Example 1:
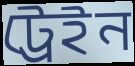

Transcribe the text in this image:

ট্ৰেইন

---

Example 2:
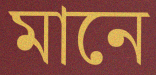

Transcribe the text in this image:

মানে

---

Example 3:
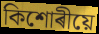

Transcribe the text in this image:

কিশোৰীয়ে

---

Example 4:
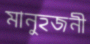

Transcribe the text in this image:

মানুহজনী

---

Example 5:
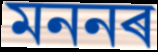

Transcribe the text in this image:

মননৰ